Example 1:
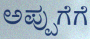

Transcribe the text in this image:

ಅಪ್ಪುಗೆಗೆ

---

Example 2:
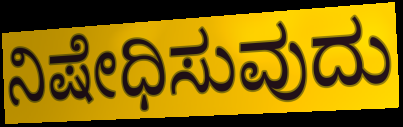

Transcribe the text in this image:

ನಿಷೇಧಿಸುವುದು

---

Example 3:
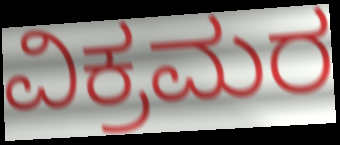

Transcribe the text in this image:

ವಿಕ್ರಮರ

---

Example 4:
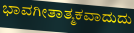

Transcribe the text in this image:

ಭಾವಗೀತಾತ್ಮಕವಾದುದು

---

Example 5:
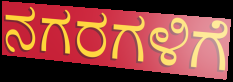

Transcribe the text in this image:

ನಗರಗಳಿಗೆ